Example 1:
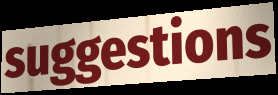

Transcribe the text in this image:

suggestions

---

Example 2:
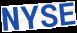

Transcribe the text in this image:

NYSE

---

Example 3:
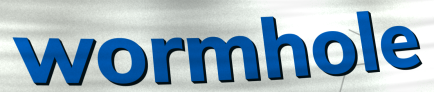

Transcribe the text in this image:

wormhole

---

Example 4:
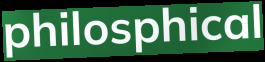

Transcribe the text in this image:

philosphical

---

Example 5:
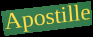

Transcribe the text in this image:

Apostille